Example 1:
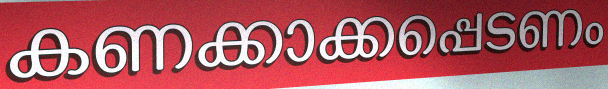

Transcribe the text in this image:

കണക്കാക്കപ്പെടണം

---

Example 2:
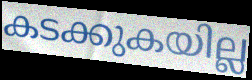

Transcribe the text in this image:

കടക്കുകയില്ല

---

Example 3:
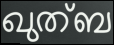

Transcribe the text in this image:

ഖുത്ബ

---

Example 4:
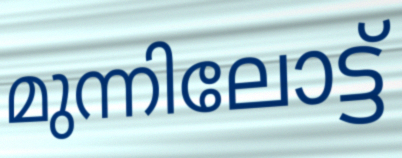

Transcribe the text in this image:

മുന്നിലോട്ട്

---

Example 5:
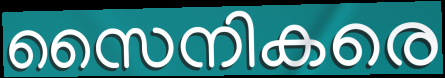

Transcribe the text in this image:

സൈനികരെ